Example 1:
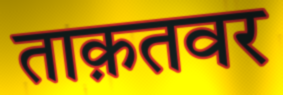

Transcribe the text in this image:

ताक़तवर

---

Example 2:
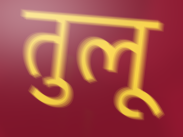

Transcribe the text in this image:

तुलू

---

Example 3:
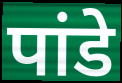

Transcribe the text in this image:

पांडे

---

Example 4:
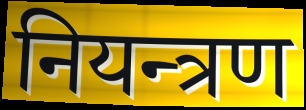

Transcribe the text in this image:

नियन्त्रण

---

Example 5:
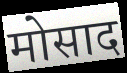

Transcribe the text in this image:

मोसाद